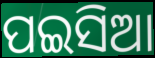
ପଇସିଆ